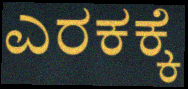
ಎರಕಕ್ಕೆ